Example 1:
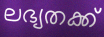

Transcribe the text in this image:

ലഭ്യതക്ക്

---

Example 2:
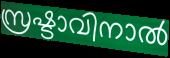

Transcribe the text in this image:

സ്രഷ്ടാവിനാൽ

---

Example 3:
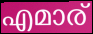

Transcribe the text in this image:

എമാര്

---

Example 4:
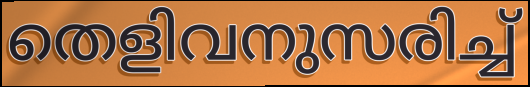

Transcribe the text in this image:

തെളിവനുസരിച്ച്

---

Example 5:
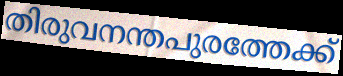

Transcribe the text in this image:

തിരുവനന്തപുരത്തേക്ക്